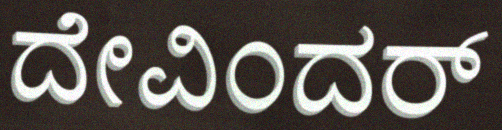
ದೇವಿಂದರ್